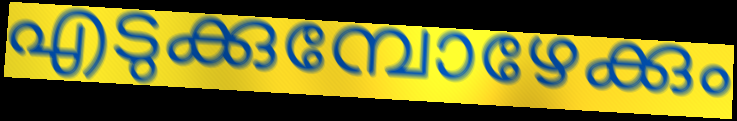
എടുക്കുമ്പോഴേക്കും